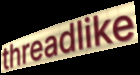
threadlike